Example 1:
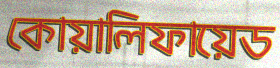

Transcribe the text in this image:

কোয়ালিফায়েড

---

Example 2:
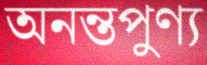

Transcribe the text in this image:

অনন্তপুণ্য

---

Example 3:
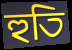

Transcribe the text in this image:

হুতি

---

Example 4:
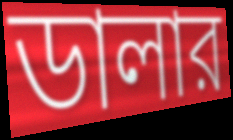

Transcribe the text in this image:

ডালার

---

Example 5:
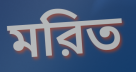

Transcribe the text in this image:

মরিত